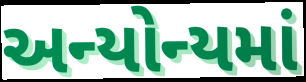
અન્યોન્યમાં